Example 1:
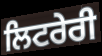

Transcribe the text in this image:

ਲਿਟਰੇਰੀ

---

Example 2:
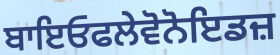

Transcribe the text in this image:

ਬਾਇਓਫਲੇਵੋਨੋਇਡਜ਼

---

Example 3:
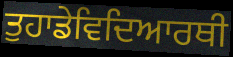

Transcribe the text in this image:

ਤੁਹਾਡੇਵਿਦਿਆਰਥੀ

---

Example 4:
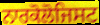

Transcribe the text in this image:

ਨਾਰਕੋਲੋਜਿਸਟ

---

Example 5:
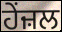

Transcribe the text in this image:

ਹੇਂਜ਼ਲ